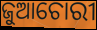
ଜୁଆଚୋରୀ